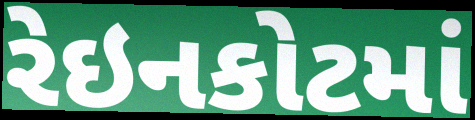
રેઇનકોટમાં